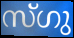
സ്ഗു